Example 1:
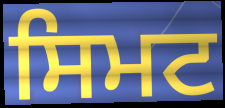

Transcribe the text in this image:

ਸਿਮਟ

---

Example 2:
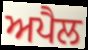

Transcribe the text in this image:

ਅਪੈਲ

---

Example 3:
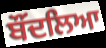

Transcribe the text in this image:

ਬੌਂਦਲਿਆ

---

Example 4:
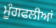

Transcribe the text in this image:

ਮੂੰਗਫਲੀਆਂ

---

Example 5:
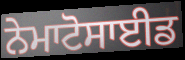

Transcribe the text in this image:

ਨੇਮਾਟੋਸਾਈਡ